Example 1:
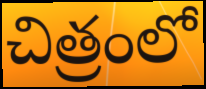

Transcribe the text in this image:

చిత్రంలో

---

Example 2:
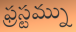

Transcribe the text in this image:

ఫ్రస్టమ్ను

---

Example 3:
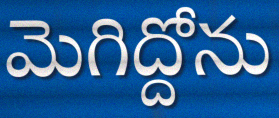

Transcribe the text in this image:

మెగిద్దోను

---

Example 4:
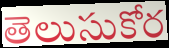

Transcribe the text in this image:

తెలుసుకోర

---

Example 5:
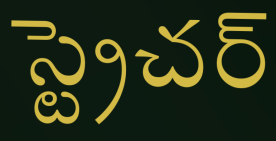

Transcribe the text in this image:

స్ట్రెచర్